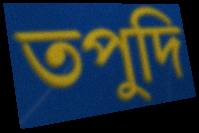
তপুদি